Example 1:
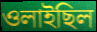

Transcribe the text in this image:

ওলাইছিল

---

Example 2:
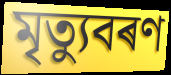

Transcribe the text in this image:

মৃত্যুবৰণ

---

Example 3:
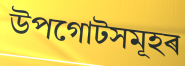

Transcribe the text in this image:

উপগোটসমূহৰ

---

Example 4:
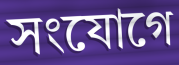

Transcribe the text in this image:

সংযোগে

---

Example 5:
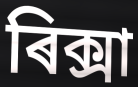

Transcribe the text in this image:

ৰিক্সা